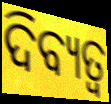
ଦିବ୍ୟତ୍ବ